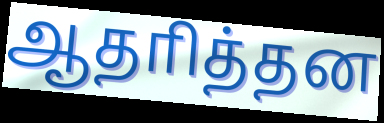
ஆதரித்தன